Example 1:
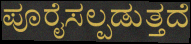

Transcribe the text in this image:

ಪೂರೈಸಲ್ಪಡುತ್ತದೆ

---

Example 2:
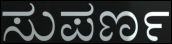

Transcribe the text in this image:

ಸುಪರ್ಣ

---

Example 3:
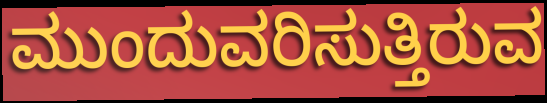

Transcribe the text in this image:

ಮುಂದುವರಿಸುತ್ತಿರುವ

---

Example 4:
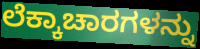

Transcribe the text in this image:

ಲೆಕ್ಕಾಚಾರಗಳನ್ನು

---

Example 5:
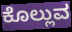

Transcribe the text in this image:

ಕೊಲ್ಲುವ